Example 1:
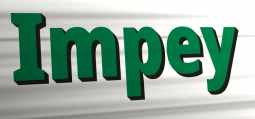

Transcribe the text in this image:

Impey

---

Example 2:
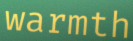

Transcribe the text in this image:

warmth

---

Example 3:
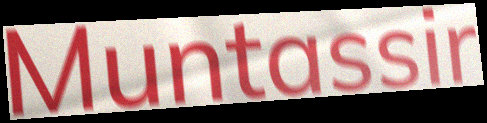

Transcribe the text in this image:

Muntassir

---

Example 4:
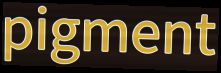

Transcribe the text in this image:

pigment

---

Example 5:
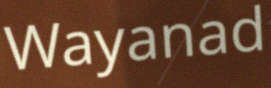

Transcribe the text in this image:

Wayanad